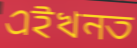
এইখনত